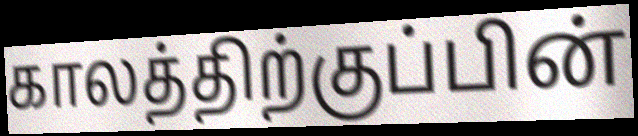
காலத்திற்குப்பின்